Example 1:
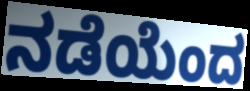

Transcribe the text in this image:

ನಡೆಯೆಂದ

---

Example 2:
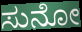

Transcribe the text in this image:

ಸುನೋ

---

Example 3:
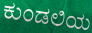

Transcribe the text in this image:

ಕುಂಡಲಿಯ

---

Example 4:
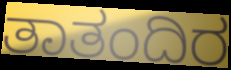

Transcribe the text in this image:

ತಾತಂದಿರ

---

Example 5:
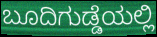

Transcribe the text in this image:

ಬೂದಿಗುಡ್ಡೆಯಲ್ಲಿ